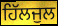
ਹਿੱਲਜੁਲ